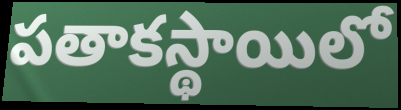
పతాకస్థాయిలో